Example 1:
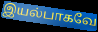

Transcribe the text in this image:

இயல்பாகவே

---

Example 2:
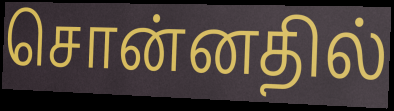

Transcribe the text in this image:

சொன்னதில்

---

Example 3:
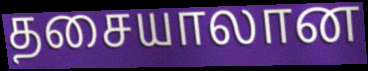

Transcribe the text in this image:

தசையாலான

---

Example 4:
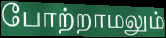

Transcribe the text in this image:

போற்றாமலும்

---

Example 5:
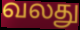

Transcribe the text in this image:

வலது